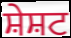
ਸ਼ੇਸ਼ਟ